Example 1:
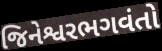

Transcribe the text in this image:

જિનેશ્વરભગવંતો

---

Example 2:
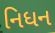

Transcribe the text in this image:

નિધન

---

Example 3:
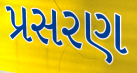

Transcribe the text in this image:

પ્રસરણ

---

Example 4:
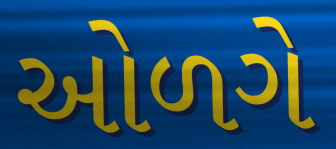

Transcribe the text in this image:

ઓળગે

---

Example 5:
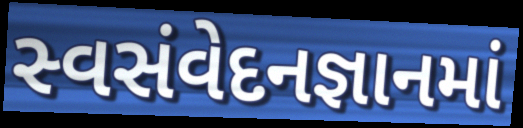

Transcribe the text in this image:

સ્વસંવેદનજ્ઞાનમાં